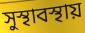
সুস্থাবস্থায়